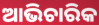
ଆଭିଚାରିକ